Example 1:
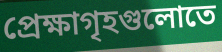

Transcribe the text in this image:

প্রেক্ষাগৃহগুলোতে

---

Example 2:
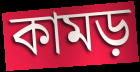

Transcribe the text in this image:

কামড়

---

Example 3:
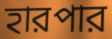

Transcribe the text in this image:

হারপার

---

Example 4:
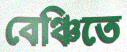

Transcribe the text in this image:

বেঞ্চিতে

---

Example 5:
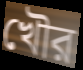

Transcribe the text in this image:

খৌর